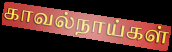
காவல்நாய்கள்